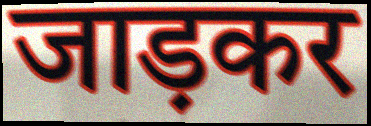
जाड़कर